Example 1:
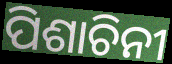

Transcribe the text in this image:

ପିଶାଚିନୀ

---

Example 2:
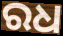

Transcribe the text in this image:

ରଧ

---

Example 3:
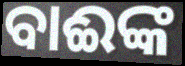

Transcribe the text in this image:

ବାଈଙ୍କ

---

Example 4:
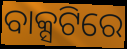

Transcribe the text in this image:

ବାକ୍ସଟିରେ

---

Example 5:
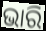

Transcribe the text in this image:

ଭାରି